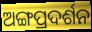
ଅଙ୍ଗପ୍ରଦର୍ଶନ